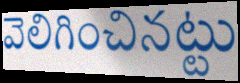
వెలిగించినట్టు